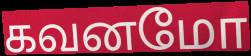
கவனமோ